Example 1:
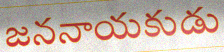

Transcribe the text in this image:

జననాయకుడు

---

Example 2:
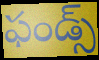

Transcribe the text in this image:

ఫండ్స్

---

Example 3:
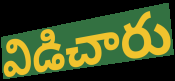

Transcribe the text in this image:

విడిచారు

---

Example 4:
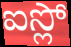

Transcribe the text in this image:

ఐస్లో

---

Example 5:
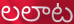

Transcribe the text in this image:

లలాట